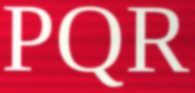
PQR